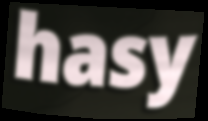
hasy